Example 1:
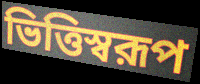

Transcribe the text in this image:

ভিত্তিস্বরূপ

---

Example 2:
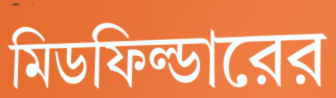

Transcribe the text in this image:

মিডফিল্ডারের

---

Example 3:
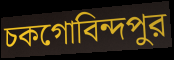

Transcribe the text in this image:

চকগোবিন্দপুর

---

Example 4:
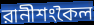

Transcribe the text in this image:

রানীশংকৈল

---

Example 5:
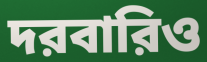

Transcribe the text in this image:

দরবারিও